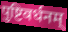
पुष्टिवर्धनम्